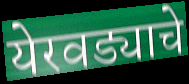
येरवड्याचे